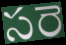
సరె